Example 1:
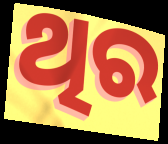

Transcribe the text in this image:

ଥିର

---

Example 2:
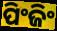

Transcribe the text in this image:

ପିଂଜିଂ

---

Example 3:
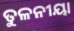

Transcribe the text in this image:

ତୁଳନୀୟା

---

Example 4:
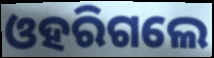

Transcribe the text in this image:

ଓହରିଗଲେ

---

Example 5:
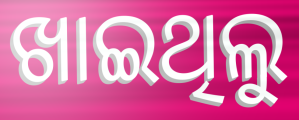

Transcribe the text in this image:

ଖାଇଥିଲୁ